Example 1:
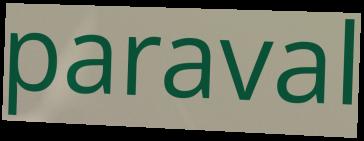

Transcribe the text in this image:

paraval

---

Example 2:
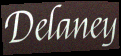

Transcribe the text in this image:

Delaney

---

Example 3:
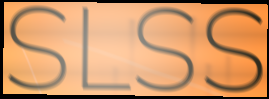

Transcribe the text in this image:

SLSS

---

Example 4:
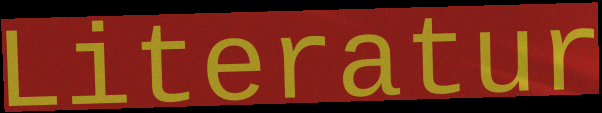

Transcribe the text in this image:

Literatur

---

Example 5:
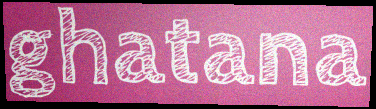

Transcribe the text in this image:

ghatana